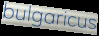
bulgaricus